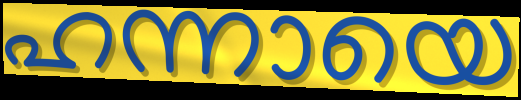
ഹന്നായെ